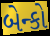
બેન્કો